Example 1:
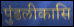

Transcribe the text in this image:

पुंडलीकासि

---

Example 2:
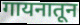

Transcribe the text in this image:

गायनातून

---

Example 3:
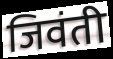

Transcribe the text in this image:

जिवंती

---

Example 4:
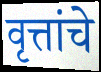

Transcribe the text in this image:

वृत्तांचे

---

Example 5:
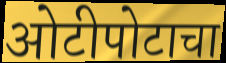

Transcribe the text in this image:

ओटीपोटाचा